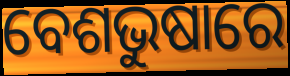
ବେଶଭୁଷାରେ